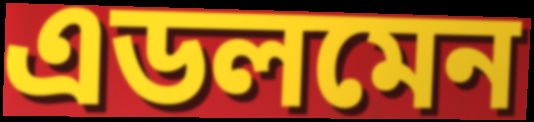
এডলমেন